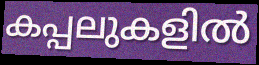
കപ്പലുകളിൽ